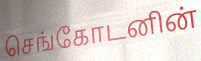
செங்கோடனின்